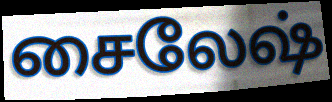
சைலேஷ்